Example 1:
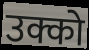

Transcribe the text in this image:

उक्को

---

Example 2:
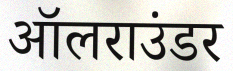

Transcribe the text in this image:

ऑलराउंडर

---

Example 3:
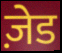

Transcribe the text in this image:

ज़ेड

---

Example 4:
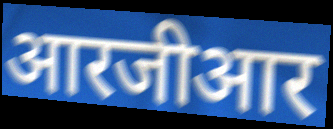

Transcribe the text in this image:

आरजीआर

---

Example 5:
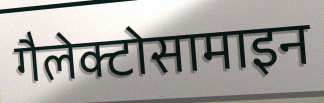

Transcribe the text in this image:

गैलेक्टोसामाइन